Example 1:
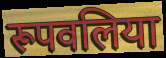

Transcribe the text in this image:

रूपवलिया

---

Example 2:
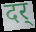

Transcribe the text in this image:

दर्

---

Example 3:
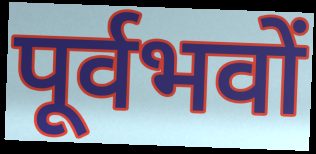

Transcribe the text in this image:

पूर्वभवों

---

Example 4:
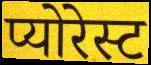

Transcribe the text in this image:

प्योरेस्ट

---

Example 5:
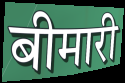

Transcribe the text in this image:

बीमारी